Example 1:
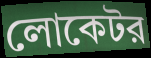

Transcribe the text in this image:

লোকেটর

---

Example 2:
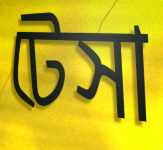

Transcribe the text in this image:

টেসা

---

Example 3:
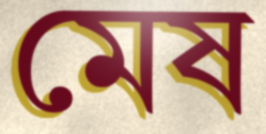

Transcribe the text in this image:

মেষ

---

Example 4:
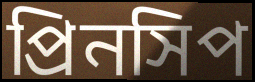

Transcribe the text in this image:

প্রিনসিপ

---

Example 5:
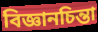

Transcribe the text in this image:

বিজ্ঞানচিন্তা